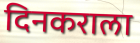
दिनकराला